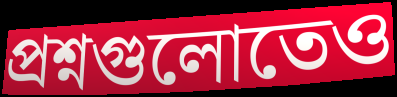
প্রশ্নগুলোতেও